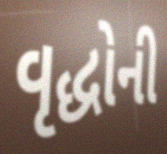
વૃદ્ધોની